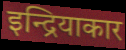
इन्द्रियाकार